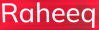
Raheeq